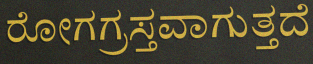
ರೋಗಗ್ರಸ್ತವಾಗುತ್ತದೆ